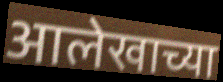
आलेखाच्या